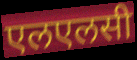
एलएलसी